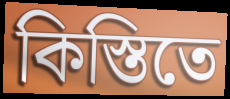
কিস্তিতে